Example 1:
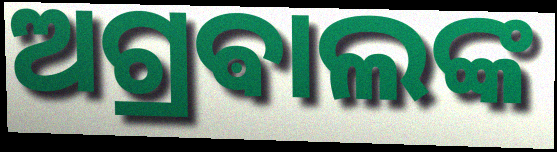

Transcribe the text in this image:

ଅଗ୍ରଵାଲଙ୍କ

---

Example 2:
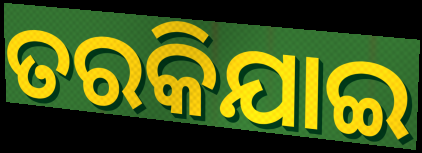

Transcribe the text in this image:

ତରକିଯାଇ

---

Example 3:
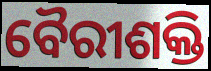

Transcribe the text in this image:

ବୈରୀଶକ୍ତି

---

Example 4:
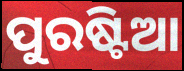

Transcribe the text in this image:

ପୁରଷ୍ଟିଆ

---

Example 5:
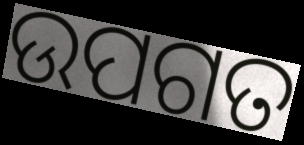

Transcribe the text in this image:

ଉପଗତ